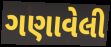
ગણાવેલી